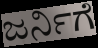
ಜರ್ನಿಗೆ